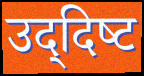
उद्‌दिष्‍ट